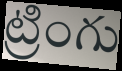
ట్రింగు